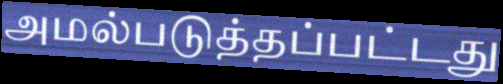
அமல்படுத்தப்பட்டது